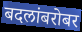
बदलांबरोबर